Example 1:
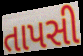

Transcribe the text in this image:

તાપસી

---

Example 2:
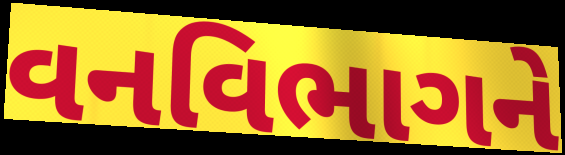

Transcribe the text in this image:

વનવિભાગને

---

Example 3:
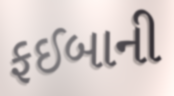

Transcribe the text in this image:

ફઈબાની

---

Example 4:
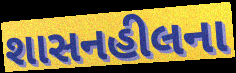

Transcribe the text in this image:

શાસનહીલના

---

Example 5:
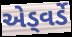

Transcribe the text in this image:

એડ્વર્ડે